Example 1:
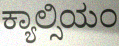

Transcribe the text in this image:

ಕ್ಯಾಲ್ಸಿಯಂ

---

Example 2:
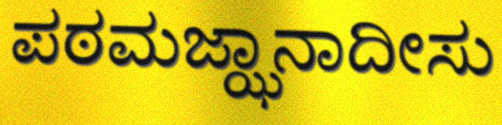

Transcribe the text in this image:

ಪಠಮಜ್ಝಾನಾದೀಸು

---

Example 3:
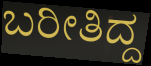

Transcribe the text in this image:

ಬರೀತಿದ್ದ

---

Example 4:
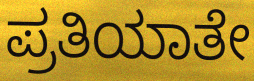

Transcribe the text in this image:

ಪ್ರತಿಯಾತೇ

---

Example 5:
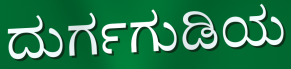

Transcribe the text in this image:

ದುರ್ಗಗುಡಿಯ